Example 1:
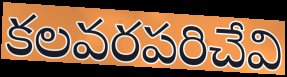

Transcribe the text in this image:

కలవరపరిచేవి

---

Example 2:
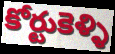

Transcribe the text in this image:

కోర్టుకెళ్ళి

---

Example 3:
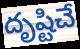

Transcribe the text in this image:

దృష్టిచే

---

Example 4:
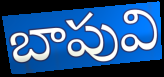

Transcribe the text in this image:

బాపువి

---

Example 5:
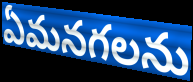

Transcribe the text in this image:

ఏమనగలను